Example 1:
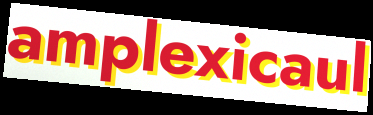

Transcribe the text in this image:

amplexicaul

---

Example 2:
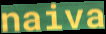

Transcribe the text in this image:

naiva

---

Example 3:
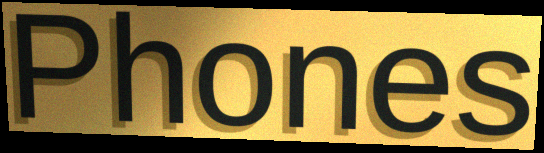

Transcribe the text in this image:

Phones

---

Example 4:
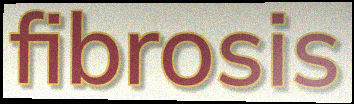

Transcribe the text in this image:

fibrosis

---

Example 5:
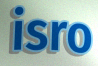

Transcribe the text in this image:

isro